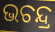
ଭଚନ୍ଦ୍ର